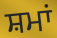
ਸ਼ਮਾਂ